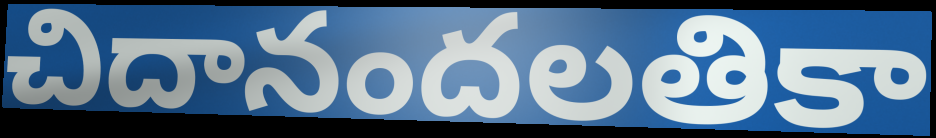
చిదానందలతికా